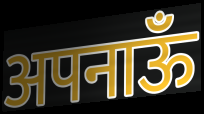
अपनाऊँ